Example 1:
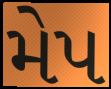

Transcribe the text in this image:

મેપ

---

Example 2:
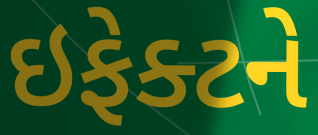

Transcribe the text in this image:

ઇફેક્ટને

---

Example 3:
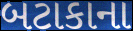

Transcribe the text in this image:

બટાકાના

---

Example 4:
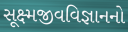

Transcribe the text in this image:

સૂક્ષ્મજીવવિજ્ઞાનનો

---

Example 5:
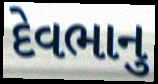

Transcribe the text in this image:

દેવભાનુ